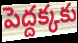
పెద్దక్కకు